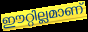
ഈറ്റില്ലമാണ്